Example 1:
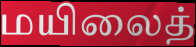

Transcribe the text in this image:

மயிலைத்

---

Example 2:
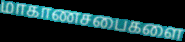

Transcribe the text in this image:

மாகாணசபைகளை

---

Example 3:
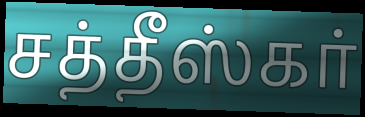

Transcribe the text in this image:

சத்தீஸ்கர்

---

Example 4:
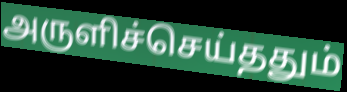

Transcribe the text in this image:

அருளிச்செய்ததும்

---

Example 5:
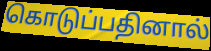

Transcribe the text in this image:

கொடுப்பதினால்